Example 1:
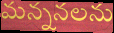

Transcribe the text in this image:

మన్ననలను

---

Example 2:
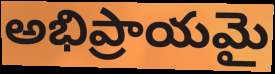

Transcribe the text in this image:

అభిప్రాయమై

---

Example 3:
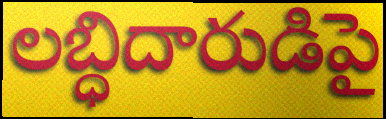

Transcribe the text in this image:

లబ్ధిదారుడిపై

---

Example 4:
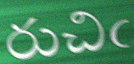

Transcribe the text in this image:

రుచిఁ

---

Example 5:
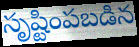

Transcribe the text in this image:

సృష్టింపబడిన